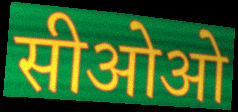
सीओओ